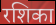
रशिका